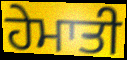
ਹੇਮਾਤੀ